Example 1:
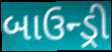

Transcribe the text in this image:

બાઉન્ડ્રી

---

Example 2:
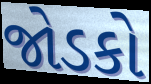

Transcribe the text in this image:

જોડકો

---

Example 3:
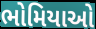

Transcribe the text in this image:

ભોમિયાઓ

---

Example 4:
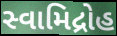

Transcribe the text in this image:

સ્વામિદ્રોહ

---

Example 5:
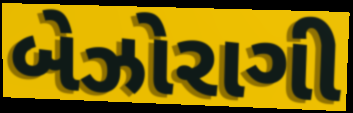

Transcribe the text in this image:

બેઝોરાગી